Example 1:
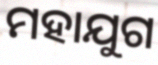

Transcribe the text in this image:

ମହାଯୁଗ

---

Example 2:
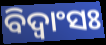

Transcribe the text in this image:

ବିଦ୍ଵାଂସଃ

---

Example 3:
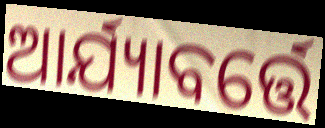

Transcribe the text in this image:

ଆର୍ଯ୍ୟାବର୍ତ୍ତେ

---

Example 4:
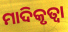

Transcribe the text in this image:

ମାଦିକୃତ୍ୱା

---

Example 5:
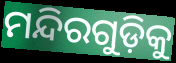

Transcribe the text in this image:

ମନ୍ଦିରଗୁଡ଼ିକୁ